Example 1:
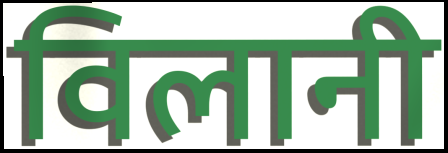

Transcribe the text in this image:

विलानी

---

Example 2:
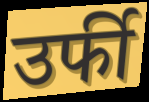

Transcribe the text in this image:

उर्फी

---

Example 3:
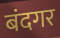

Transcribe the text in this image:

बंदगर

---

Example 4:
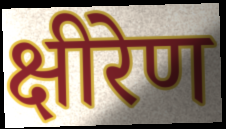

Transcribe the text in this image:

क्षीरेण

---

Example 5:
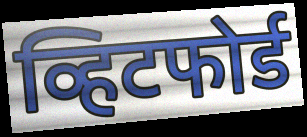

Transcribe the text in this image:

व्हिटफोर्ड